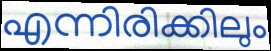
എന്നിരിക്കിലും